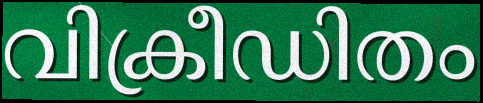
വിക്രീഡിതം